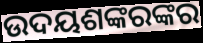
ଉଦୟଶଙ୍କରଙ୍କର